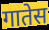
गातेस